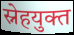
स्नेहयुक्त